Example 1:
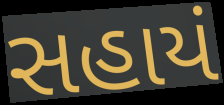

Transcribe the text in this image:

સહાયં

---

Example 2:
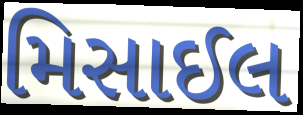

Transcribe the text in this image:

મિસાઈલ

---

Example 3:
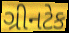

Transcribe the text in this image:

ગ્રીનટેક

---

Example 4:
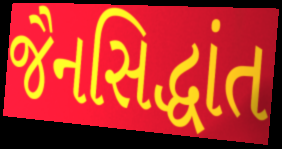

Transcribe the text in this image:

જૈનસિદ્ધાંત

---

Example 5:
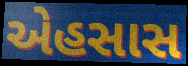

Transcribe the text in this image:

એહસાસ